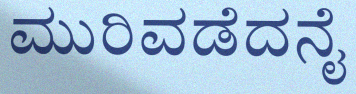
ಮುರಿವಡೆದನೈ